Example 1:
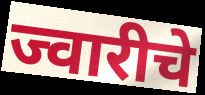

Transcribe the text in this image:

ज्वारीचे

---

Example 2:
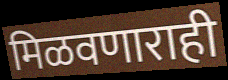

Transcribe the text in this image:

मिळवणाराही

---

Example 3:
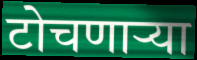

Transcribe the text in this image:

टोचणाऱ्या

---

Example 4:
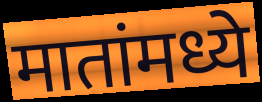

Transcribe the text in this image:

मातांमध्ये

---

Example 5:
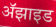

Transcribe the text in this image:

ॲझाइड